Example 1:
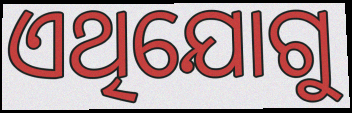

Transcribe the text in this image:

ଏଥିଯୋଗୁ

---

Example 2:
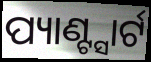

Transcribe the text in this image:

ପ୍ୟାଣ୍ଟ୍ସାର୍ଟ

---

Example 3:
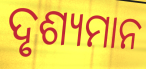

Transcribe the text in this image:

ଦୃଶ୍ୟମାନ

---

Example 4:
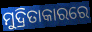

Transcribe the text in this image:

ମୁଦ୍ରିତାକାରରେ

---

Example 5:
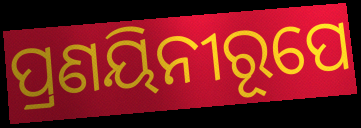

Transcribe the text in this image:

ପ୍ରଣୟିନୀରୂପେ